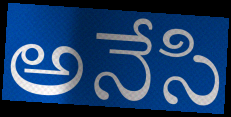
అనేసి